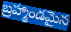
బ్రహ్మాండమైన